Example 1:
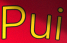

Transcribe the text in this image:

Pui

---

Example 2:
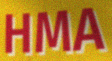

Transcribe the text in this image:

HMA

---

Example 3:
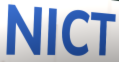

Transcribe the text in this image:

NICT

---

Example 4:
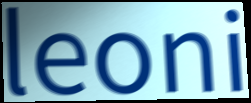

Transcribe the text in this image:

leoni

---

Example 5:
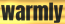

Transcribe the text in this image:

warmly